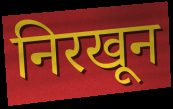
निरखून